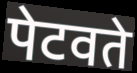
पेटवते